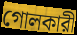
গোলকারী